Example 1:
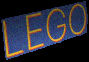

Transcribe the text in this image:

LEGO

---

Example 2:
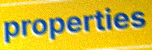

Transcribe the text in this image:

properties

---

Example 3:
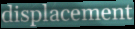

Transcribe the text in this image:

displacement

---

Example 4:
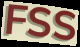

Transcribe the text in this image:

FSS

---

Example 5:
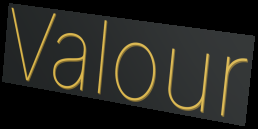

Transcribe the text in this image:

Valour